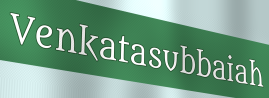
Venkatasubbaiah